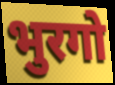
भुरगो